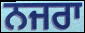
ਨਜਰਾ